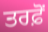
ਤਰਫ਼ੋਂ